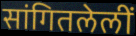
सांगितलेलीं